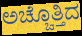
ಅಚ್ಚೊತ್ತಿದ